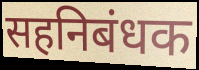
सहनिबंधक